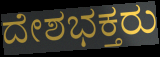
ದೇಶಭಕ್ತರು